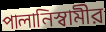
পালানিস্বামীর